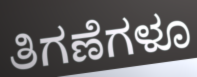
ತಿಗಣೆಗಳೂ